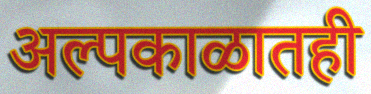
अल्पकाळातही